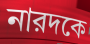
নারদকে